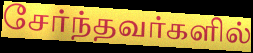
சேர்ந்தவர்களில்